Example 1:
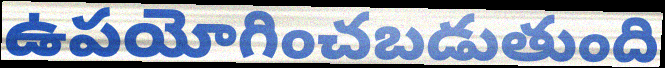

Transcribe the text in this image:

ఉపయోగించబడుతుంది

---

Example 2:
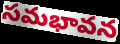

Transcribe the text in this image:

సమభావన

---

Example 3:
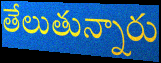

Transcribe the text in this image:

తేలుతున్నారు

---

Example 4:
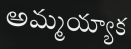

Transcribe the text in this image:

అమ్మయ్యాక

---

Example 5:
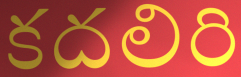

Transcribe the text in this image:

కదలిరి